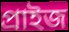
প্ৰাইজ